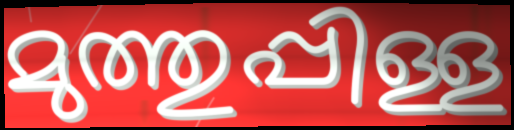
മുത്തുപ്പിള്ള